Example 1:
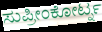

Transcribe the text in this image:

ಸುಪ್ರೀಂಕೋರ್ಟ್ನ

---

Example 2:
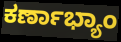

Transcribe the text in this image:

ಕರ್ಣಾಭ್ಯಾಂ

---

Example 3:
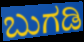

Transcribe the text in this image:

ಬುಗಡಿ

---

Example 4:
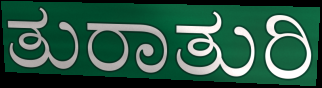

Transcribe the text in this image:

ತುರಾತುರಿ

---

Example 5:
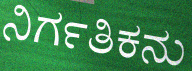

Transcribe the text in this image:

ನಿರ್ಗತಿಕನು